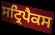
ਸਟ੍ਰਿਪੈਕਸ